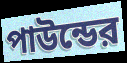
পাউন্ডের